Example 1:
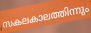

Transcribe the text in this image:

സകലകാലത്തിന്നും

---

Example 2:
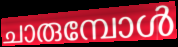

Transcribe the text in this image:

ചാരുമ്പോൾ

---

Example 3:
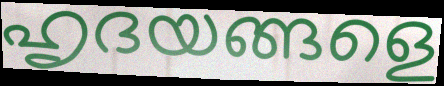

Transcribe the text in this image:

ഹൃദയങ്ങളെ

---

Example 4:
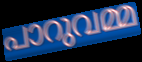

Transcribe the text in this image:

പാറുവമ്മ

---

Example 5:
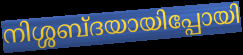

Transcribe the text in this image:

നിശ്ശബ്ദയായിപ്പോയി